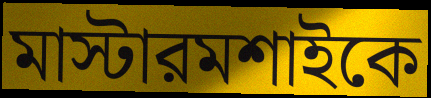
মাস্টারমশাইকে